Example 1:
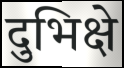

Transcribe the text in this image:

दुभिक्षे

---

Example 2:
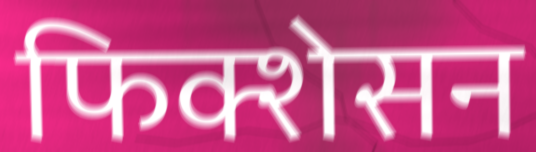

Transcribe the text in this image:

फिक्शेसन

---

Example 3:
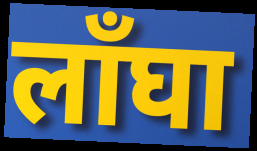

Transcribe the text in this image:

लाँघा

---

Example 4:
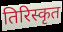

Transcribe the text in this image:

तिरिस्कृत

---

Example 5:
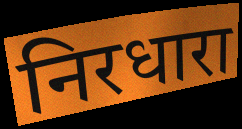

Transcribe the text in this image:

निरधारा